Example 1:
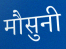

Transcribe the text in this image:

मौसुनी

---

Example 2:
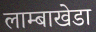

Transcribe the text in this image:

लाम्बाखेडा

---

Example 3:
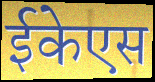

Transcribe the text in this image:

ईकेएस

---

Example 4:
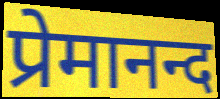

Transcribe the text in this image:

प्रेमानन्द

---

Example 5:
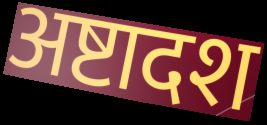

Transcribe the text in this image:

अष्टादश